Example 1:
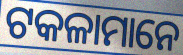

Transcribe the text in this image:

ଟକଳାମାନେ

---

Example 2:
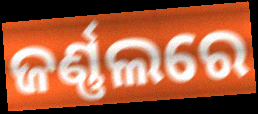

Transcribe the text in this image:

ଜର୍ଣ୍ଣଲରେ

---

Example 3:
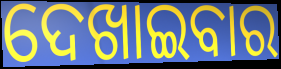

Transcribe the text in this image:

ଦେଖାଇବାର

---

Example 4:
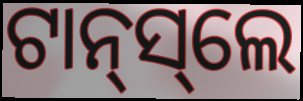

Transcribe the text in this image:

ଟାନ୍‌ସ୍‌ଲେ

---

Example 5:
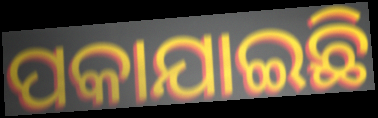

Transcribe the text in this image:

ପକାଯାଇଛି